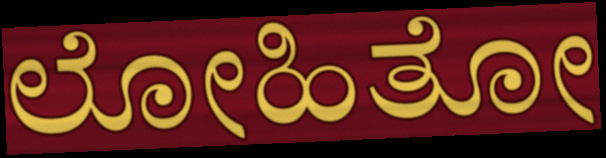
ಲೋಹಿತೋ